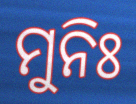
ମୁନିଃ